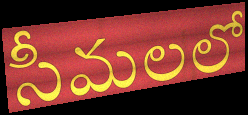
సీమలలో